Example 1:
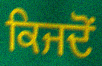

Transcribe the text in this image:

ਕਿਜਦੋਂ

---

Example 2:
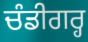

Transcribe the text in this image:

ਚੰਡੀਗਰ੍ਹ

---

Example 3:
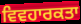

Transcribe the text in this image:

ਵਿਵਹਾਰਕਤਾ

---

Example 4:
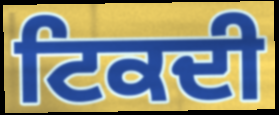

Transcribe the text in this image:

ਟਿਕਦੀ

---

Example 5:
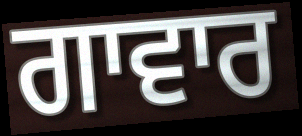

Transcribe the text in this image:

ਗਾਵਾਰ